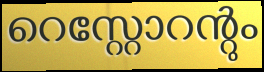
റെസ്റ്റോറന്റും